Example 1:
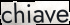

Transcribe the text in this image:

chiave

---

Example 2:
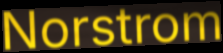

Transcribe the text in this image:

Norstrom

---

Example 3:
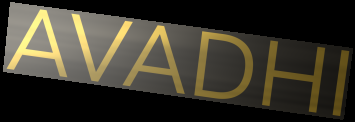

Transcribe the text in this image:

AVADHI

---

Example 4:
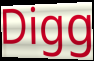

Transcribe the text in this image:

Digg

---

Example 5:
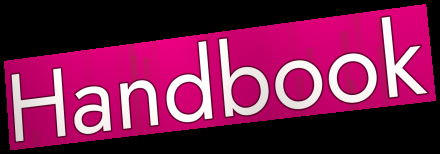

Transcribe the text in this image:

Handbook